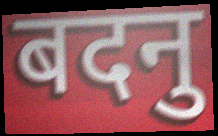
बदनु